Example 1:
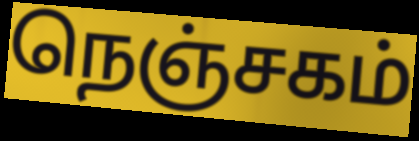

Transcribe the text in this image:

நெஞ்சகம்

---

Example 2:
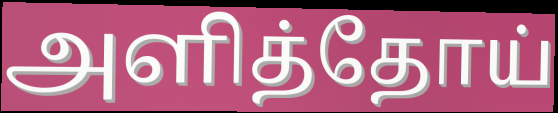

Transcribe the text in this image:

அளித்தோய்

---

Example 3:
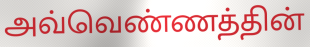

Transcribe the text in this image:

அவ்வெண்ணத்தின்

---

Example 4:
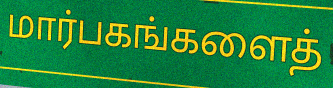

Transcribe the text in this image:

மார்பகங்களைத்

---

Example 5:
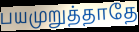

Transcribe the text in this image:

பயமுறுத்தாதே